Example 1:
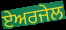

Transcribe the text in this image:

ਏਅਰਜੇਲ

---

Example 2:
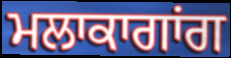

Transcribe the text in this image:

ਮਲਾਕਾਗਾਂਗ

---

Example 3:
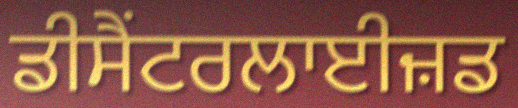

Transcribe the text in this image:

ਡੀਸੈਂਟਰਲਾਈਜ਼ਡ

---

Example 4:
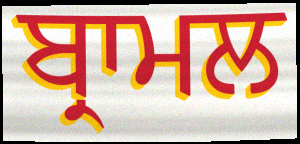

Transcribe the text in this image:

ਬ੍ਰਾਮਲ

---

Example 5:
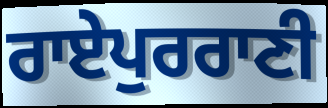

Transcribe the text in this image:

ਰਾਏਪੁਰਰਾਣੀ